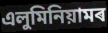
এলুমিনিয়ামৰ